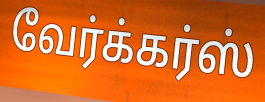
வேர்க்கர்ஸ்